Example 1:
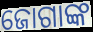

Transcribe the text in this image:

ଜୋଗାଙ୍କ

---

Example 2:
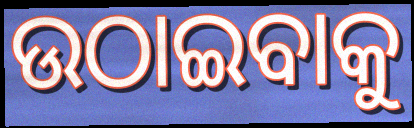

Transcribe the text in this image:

ଉଠାଇବାକୁ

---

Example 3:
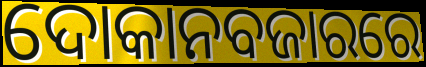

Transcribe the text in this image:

ଦୋକାନବଜାରରେ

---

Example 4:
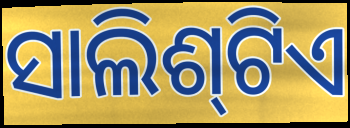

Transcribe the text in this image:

ସାଲିଶ୍‌ଟିଏ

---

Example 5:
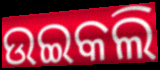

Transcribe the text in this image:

ଉଇକଲି